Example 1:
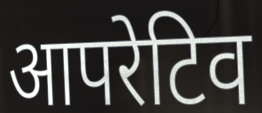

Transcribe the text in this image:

आपरेटिव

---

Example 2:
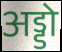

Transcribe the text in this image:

अड्डो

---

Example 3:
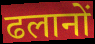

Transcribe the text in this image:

ढलानों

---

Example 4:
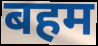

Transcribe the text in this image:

बहम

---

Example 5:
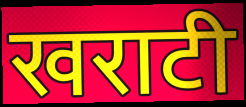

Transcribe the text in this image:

खराटी